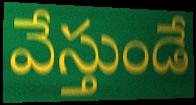
వేస్తుండే